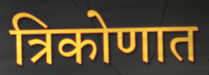
त्रिकोणात